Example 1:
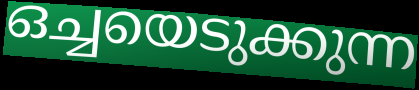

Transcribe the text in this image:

ഒച്ചയെടുക്കുന്ന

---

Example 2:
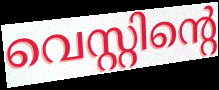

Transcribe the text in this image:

വെസ്റ്റിന്റെ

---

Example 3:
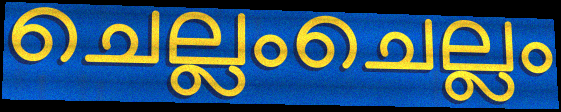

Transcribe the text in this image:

ചെല്ലംചെല്ലം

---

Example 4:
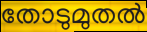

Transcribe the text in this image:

തോടുമുതൽ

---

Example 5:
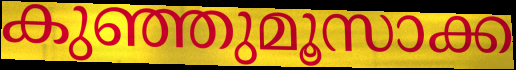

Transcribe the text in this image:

കുഞ്ഞുമൂസാക്ക